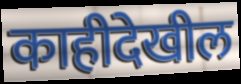
काहीदेखील